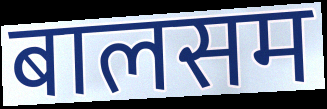
बालसम